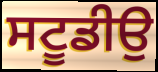
ਸਟੂਡੀਉ